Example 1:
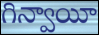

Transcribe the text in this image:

గిన్వాయీ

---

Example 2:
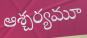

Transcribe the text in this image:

ఆశ్చర్యమూ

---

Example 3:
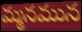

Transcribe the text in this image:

మ్మనమున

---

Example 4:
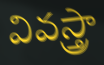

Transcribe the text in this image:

వివస్త్రా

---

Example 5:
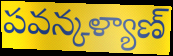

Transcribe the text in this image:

పవన్కళ్యాణ్